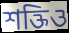
শক্তিও